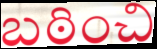
బఠించి